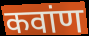
कवांण